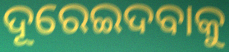
ଦୂରେଇଦବାକୁ